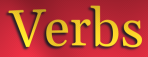
Verbs